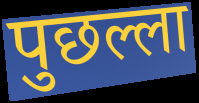
पुछल्ला